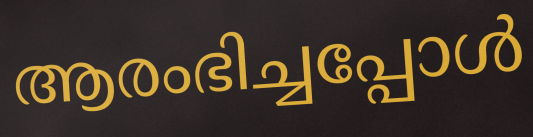
ആരംഭിച്ചപ്പോൾ